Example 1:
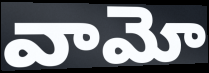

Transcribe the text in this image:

వామో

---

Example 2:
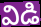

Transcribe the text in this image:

విడి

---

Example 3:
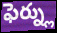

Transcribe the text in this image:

ఫెర్న్లు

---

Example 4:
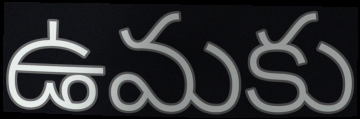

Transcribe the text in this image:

ఉమకు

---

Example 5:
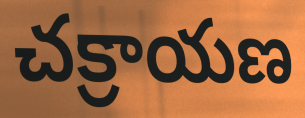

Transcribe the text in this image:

చక్రాయణ